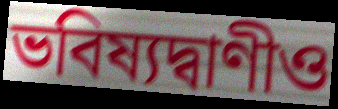
ভবিষ্যদ্বাণীও